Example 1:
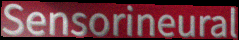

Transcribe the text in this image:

Sensorineural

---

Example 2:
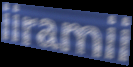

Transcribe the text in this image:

iiramii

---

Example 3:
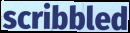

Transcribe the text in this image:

scribbled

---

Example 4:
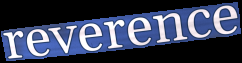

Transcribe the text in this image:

reverence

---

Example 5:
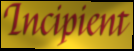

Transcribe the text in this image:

Incipient